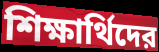
শিক্ষার্থিদের